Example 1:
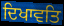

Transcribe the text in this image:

ਦਿਖਾਵਤਿ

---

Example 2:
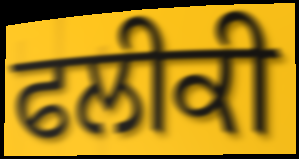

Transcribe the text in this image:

ਫਲੀਕੀ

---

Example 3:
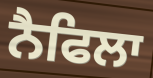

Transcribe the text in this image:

ਨੈਫਿਲਾ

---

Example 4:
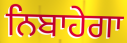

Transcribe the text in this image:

ਨਿਬਾਹੇਗਾ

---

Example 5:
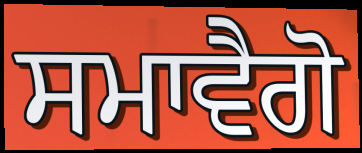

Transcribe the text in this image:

ਸਮਾਵੈਗੋ